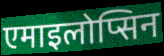
एमाइलोप्सिन